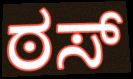
ಠಸ್